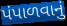
પંપાળવાનું